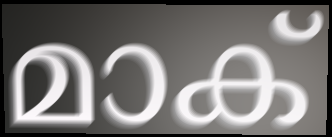
മാക്